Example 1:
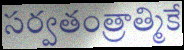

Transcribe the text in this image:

సర్వతంత్రాత్మికే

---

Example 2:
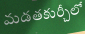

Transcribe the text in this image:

మడతకుర్చీలో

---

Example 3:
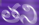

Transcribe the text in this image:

తని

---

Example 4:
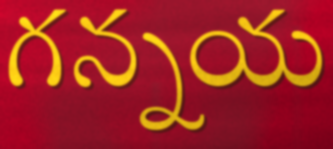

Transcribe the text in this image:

గన్నయ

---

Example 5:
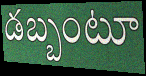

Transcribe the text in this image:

డబ్బంటూ